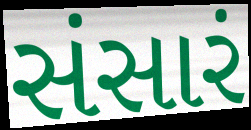
સંસારં